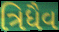
ત્રિધૈવ